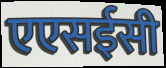
एएसईसी